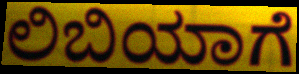
ಲಿಬಿಯಾಗೆ